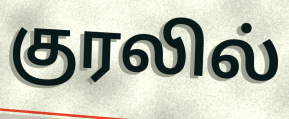
குரலில்